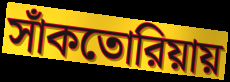
সাঁকতোরিয়ায়